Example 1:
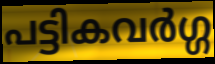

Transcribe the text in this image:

പട്ടികവർഗ്ഗ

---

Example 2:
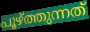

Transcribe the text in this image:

പൂഴ്ത്തുന്നത്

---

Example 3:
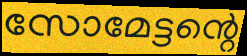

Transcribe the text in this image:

സോമേട്ടന്റെ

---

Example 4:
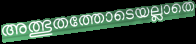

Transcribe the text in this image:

അത്ഭുതത്തോടെയല്ലാതെ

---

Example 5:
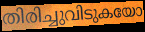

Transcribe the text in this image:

തിരിച്ചുവിടുകയോ